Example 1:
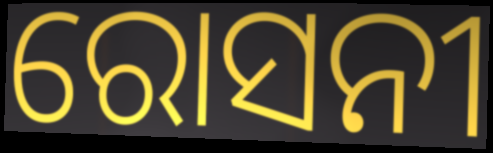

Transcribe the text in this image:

ରୋସନୀ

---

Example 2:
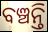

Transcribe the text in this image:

ବଞ୍ଚନ୍ତି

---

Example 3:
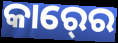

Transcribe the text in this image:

କାର୍‍ରେ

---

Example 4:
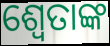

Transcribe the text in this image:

ଶ୍ଵେତାଙ୍କ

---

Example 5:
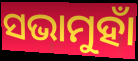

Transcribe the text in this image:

ସଭାମୁହାଁ